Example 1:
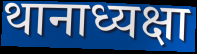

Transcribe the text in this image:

थानाध्यक्षा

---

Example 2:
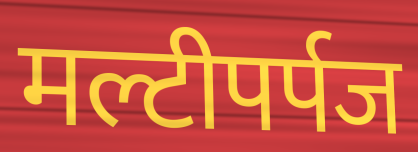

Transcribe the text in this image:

मल्टीपर्पज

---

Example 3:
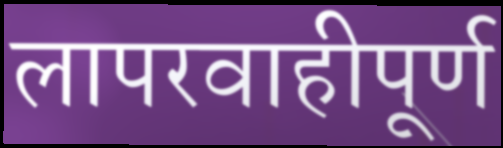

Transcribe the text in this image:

लापरवाहीपूर्ण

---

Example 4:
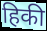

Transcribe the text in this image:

हिकी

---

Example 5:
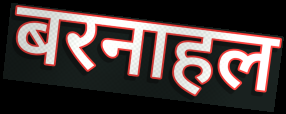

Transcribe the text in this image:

बरनाहल